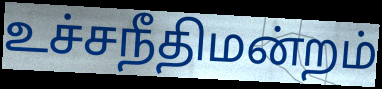
உச்சநீதிமன்றம்